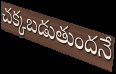
చక్కబడుతుందనే